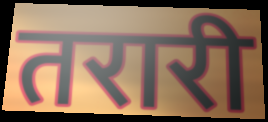
तरारी